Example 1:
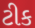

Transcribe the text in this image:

ટીક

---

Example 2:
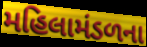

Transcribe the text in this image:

મહિલામંડળના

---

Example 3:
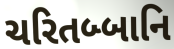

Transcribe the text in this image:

ચરિતબ્બાનિ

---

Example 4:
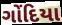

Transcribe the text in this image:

ગોંદિયા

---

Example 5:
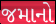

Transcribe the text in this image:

જમાનો